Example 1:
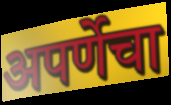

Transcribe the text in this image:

अपर्णेचा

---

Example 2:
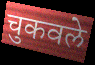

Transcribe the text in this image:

चुकवले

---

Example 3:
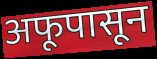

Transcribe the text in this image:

अफूपासून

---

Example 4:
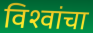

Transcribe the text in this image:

विश्वांचा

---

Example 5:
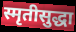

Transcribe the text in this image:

स्मृतीसुद्धा